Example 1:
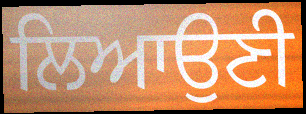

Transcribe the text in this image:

ਲਿਆਉਣੀ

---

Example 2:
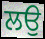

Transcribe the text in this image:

ਲਉ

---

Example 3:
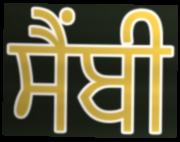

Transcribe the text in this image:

ਸੈਂਬੀ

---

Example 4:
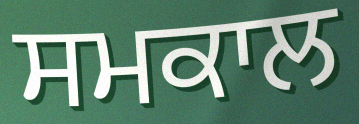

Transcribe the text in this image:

ਸਮਕਾਲ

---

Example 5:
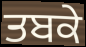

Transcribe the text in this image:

ਤਬਕੇ